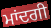
ਮਾਂਦਗੀ